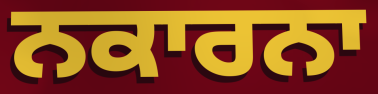
ਨਕਾਰਨਾ